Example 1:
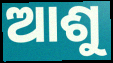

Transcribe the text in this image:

ଆଶୁ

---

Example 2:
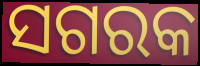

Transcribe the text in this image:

ସଗରକ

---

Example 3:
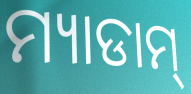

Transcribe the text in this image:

ମ୍ୟାଡାମ୍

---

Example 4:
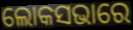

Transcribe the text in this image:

ଲୋକସଭାରେ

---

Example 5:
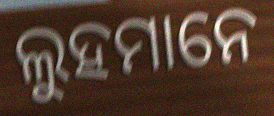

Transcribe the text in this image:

ଲୁହମାନେ